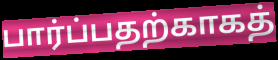
பார்ப்பதற்காகத்